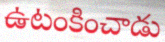
ఉటంకించాడు